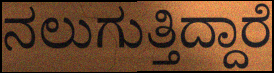
ನಲುಗುತ್ತಿದ್ದಾರೆ